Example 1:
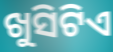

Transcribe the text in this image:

ଖୁସିଟିଏ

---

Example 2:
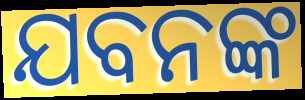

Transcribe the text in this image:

ଯବନଙ୍କ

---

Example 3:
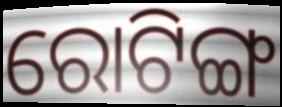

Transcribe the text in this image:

ରୋଟିଙ୍ଗ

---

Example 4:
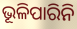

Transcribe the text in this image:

ଭୂଳିପାରିନି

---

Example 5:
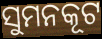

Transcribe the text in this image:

ସୁମନକୂଟ